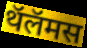
थॅलॅमस